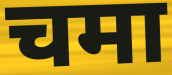
चमा